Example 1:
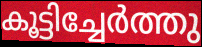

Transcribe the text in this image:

കൂട്ടിച്ചേർത്തു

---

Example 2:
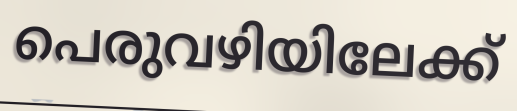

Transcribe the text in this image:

പെരുവഴിയിലേക്ക്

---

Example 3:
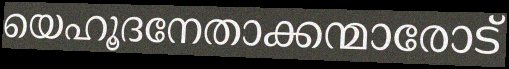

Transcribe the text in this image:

യെഹൂദനേതാക്കന്മാരോട്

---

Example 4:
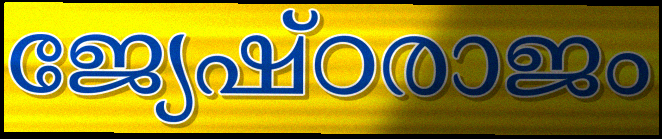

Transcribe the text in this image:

ജ്യേഷ്ഠരാജം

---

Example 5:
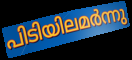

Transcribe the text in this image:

പിടിയിലമർന്നു